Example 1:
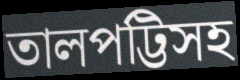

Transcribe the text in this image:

তালপট্টিসহ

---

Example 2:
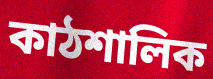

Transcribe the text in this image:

কাঠশালিক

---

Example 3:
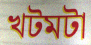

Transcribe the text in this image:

খটমটা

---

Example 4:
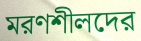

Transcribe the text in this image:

মরণশীলদের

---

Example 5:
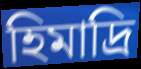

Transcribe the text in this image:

হিমাদ্রি